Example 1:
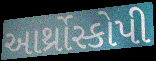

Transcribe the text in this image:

આર્થ્રોસ્કોપી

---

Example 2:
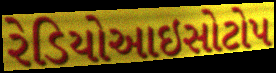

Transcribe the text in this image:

રેડિયોઆઇસોટોપ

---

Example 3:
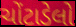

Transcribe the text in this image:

ચોંટાડેલો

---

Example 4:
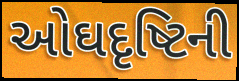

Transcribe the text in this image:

ઓઘદૃષ્ટિની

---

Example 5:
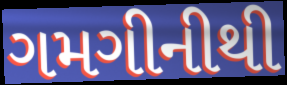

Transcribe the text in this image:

ગમગીનીથી